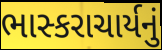
ભાસ્કરાચાર્યનું